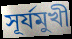
সূর্যমুখী